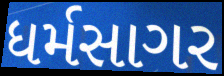
ધર્મસાગર